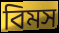
বিমস